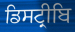
ਡਿਸਟ੍ਰੀਬਿ